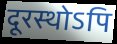
दूरस्थोऽपि